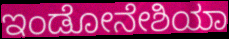
ಇಂಡೋನೇಶಿಯಾ